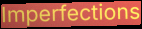
Imperfections